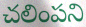
చలింపని